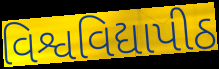
વિશ્વવિદ્યાપીઠ